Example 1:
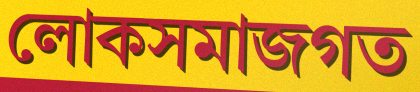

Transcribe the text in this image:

লোকসমাজগত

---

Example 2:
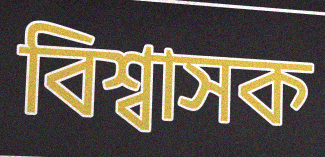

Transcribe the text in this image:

বিশ্বাসক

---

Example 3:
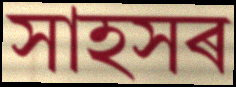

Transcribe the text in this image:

সাহসৰ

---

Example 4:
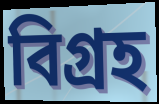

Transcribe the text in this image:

বিগ্ৰহ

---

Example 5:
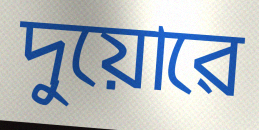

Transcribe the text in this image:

দুয়োৱে